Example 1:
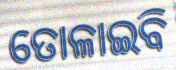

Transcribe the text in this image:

ତୋଳାଇବି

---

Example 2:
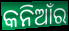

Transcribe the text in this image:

କନିଆଁର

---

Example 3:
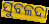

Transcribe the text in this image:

ସୁବଳଦା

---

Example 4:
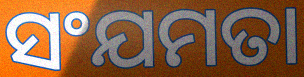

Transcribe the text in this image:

ସଂଯମତା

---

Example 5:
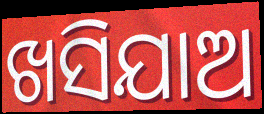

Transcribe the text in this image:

ଖସିଯାଅ